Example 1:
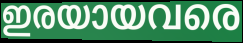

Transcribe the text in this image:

ഇരയായവരെ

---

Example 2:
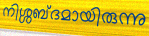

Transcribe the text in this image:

നിശ്ശബ്ദമായിരുന്നു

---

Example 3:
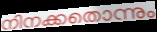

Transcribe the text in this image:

നിനക്കതൊന്നും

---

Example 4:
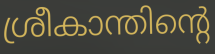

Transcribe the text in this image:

ശ്രീകാന്തിന്റെ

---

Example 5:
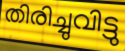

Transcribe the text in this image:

തിരിച്ചുവിട്ടു